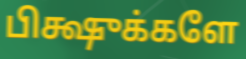
பிக்ஷுக்களே